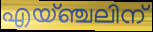
എയ്ഞ്ചലിന്